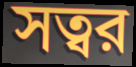
সত্বর